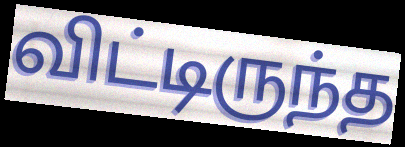
விட்டிருந்த